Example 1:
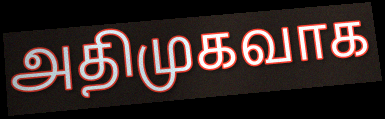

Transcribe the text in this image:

அதிமுகவாக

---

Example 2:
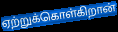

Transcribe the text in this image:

ஏற்றுக்கொள்கிறான்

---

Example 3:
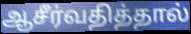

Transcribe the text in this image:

ஆசீர்வதித்தால்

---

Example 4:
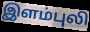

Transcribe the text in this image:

இளம்புலி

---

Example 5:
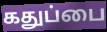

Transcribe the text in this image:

கதுப்பை